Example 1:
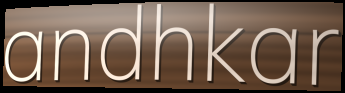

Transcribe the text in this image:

andhkar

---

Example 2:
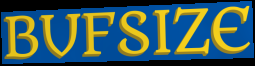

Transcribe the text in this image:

BUFSIZE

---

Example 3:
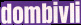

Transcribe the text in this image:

dombivli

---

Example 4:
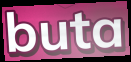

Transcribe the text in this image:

buta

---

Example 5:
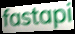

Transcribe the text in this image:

fastapi